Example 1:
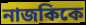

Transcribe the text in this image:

নাজকিকে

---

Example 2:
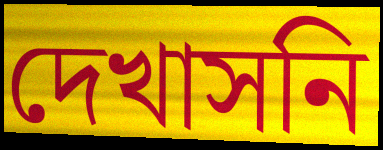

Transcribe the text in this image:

দেখাসনি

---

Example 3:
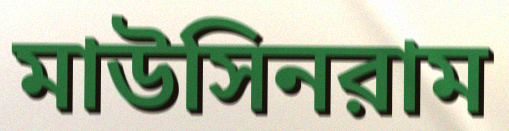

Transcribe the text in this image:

মাউসিনরাম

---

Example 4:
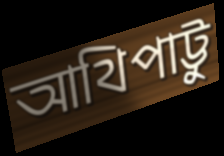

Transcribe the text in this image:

আথিপাট্টু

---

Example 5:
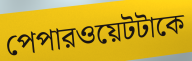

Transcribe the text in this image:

পেপারওয়েটটাকে